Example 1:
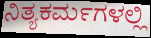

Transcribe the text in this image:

ನಿತ್ಯಕರ್ಮಗಳಲ್ಲಿ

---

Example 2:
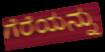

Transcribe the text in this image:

ಗೆರೆಯನ್ನು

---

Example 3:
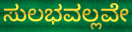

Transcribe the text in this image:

ಸುಲಭವಲ್ಲವೇ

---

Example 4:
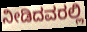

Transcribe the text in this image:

ನೀಡಿದವರಲ್ಲಿ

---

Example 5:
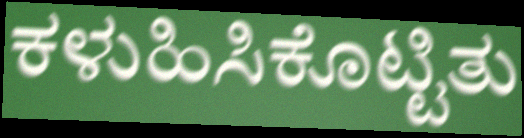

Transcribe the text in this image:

ಕಳುಹಿಸಿಕೊಟ್ಟಿತು